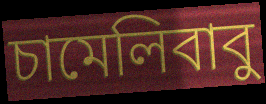
চামেলিবাবু